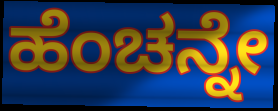
ಹೆಂಚನ್ನೇ